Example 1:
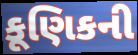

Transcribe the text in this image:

કૂણિકની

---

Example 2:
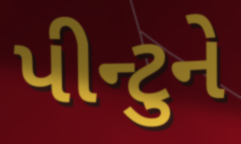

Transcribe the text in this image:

પીન્ટુને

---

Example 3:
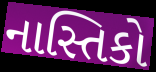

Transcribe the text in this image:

નાસ્તિકો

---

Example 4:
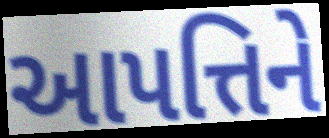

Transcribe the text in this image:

આપત્તિને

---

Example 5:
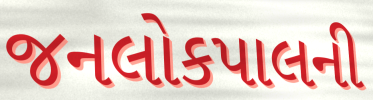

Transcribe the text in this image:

જનલોકપાલની